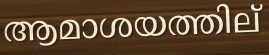
ആമാശയത്തില്